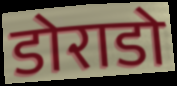
डोराडो